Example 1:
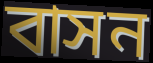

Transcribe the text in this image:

বাসন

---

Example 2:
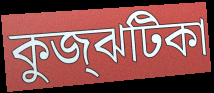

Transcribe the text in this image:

কুজ্‌ঝটিকা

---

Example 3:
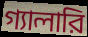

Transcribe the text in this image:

গ্যালারি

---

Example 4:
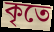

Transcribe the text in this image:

কৃতে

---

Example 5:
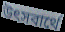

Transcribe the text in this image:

উৎসবার্থে